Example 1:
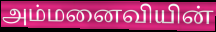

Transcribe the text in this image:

அம்மனைவியின்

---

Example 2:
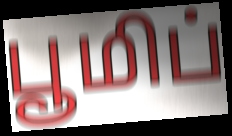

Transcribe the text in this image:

பூமிப்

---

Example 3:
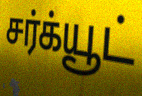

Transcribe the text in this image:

சர்க்யூட்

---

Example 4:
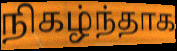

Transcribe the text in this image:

நிகழ்ந்தாக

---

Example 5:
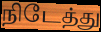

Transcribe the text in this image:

நிடேத்து